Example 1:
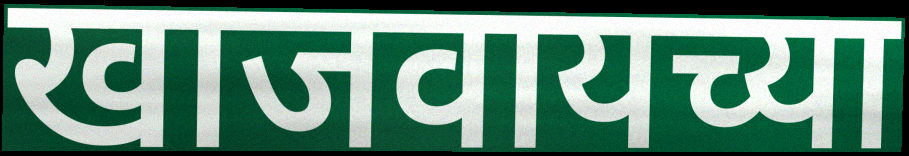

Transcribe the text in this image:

खाजवायच्या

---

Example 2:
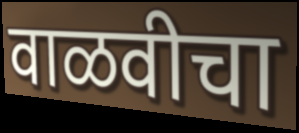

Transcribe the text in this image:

वाळवीचा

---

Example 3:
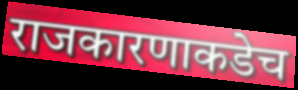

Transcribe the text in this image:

राजकारणाकडेच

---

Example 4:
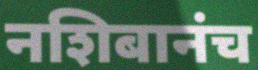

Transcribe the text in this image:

नशिबानंच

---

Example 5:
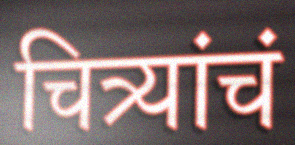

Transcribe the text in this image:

चित्र्यांचं